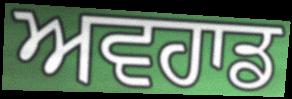
ਅਵਹਾਡ